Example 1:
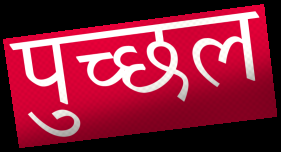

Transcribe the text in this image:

पुच्छल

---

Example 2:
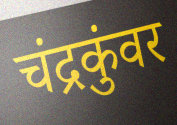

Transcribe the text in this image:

चंद्रकुंवर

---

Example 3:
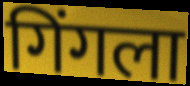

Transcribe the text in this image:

गिंगला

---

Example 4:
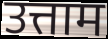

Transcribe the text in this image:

उत्ताम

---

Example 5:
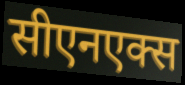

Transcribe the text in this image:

सीएनएक्स